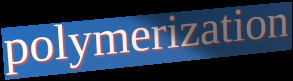
polymerization